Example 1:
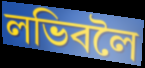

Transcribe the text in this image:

লভিবলৈ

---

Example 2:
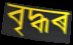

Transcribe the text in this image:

বৃদ্ধৰ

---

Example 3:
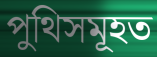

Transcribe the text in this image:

পুথিসমূহত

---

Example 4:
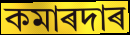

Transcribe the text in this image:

কমাৰদাৰ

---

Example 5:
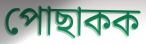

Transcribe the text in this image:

পোছাকক